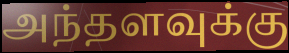
அந்தளவுக்கு